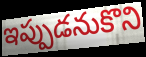
ఇప్పుడనుకొని